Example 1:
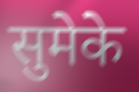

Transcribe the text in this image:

सुमेके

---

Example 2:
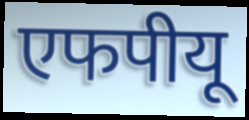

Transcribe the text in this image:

एफपीयू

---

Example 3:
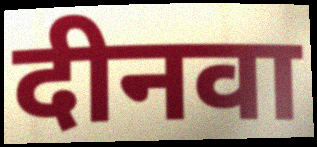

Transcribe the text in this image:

दीनवा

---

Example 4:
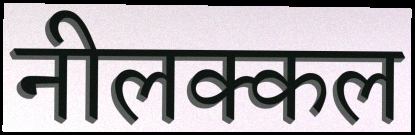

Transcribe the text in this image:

नीलक्कल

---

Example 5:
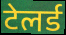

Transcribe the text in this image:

टेलर्ड